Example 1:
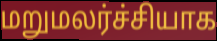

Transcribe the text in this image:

மறுமலர்ச்சியாக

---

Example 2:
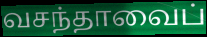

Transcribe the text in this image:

வசந்தாவைப்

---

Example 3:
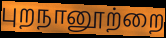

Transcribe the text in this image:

புறநானூற்றை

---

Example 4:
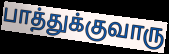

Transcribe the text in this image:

பாத்துக்குவாரு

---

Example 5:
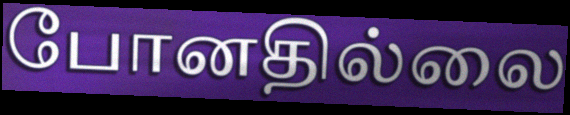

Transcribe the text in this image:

போனதில்லை